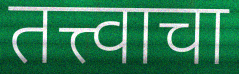
तत्त्वाचा